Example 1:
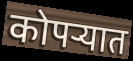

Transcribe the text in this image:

कोपर्‍यात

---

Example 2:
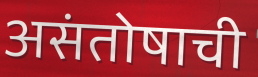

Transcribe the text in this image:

असंतोषाची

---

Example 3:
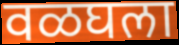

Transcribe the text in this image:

वळघला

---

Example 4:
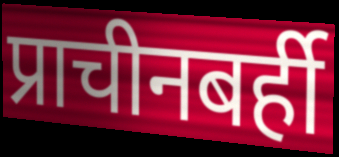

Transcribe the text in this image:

प्राचीनबर्ही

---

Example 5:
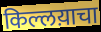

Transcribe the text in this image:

किल्लय़ाचा